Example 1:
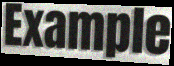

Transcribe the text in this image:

Example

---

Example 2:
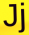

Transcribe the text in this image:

Jj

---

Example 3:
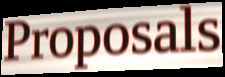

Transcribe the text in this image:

Proposals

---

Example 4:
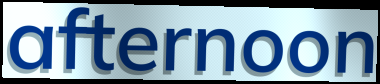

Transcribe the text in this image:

afternoon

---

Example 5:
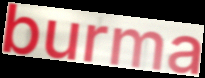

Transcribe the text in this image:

burma